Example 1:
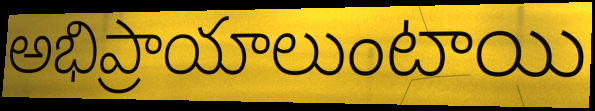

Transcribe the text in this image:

అభిప్రాయాలుంటాయి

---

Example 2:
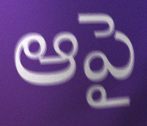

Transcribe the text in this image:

ఆపై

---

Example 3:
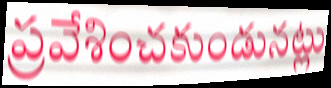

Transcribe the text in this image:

ప్రవేశించకుండునట్లు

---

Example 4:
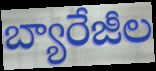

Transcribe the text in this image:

బ్యారేజీల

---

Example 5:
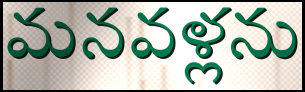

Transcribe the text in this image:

మనవళ్లను